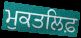
ਮੁਕਤਲਿਫ਼